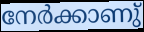
നേർക്കാണു്